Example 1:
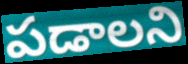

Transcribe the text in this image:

పడాలని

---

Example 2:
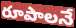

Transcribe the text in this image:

రూపాలనే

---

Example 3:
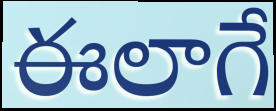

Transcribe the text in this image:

ఈలాగే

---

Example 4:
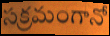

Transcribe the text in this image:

సక్రమంగానో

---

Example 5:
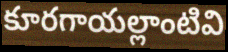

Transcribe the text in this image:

కూరగాయల్లాంటివి